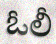
ఓలీ